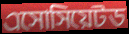
এসোসিয়েটড